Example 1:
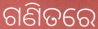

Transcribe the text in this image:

ଗଣିତରେ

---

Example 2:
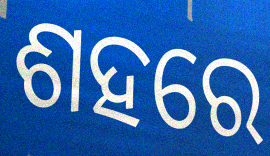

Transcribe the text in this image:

ଶହରେ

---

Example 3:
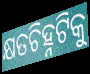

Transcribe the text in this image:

କ୍ଷତଚିହ୍ନଟିକୁ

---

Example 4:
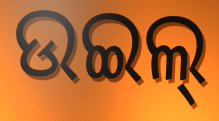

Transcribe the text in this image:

ଉଇଲ୍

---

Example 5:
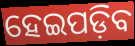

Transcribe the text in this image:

ହେଇପଡ଼ିବ